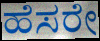
ಹೆಸರೇ